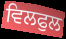
ਵਿਲਫੁਲ